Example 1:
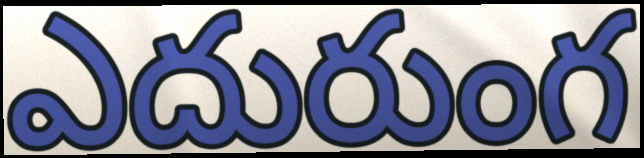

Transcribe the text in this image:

ఎదురుంగ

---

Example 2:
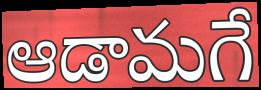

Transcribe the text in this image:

ఆడామగే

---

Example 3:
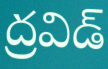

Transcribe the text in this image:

ద్రవిడ్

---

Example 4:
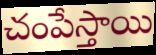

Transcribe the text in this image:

చంపేస్తాయి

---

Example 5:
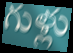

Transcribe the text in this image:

గుళ్లు